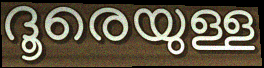
ദൂരെയുള്ള